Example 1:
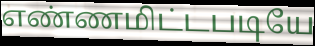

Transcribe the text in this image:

எண்ணமிட்டபடியே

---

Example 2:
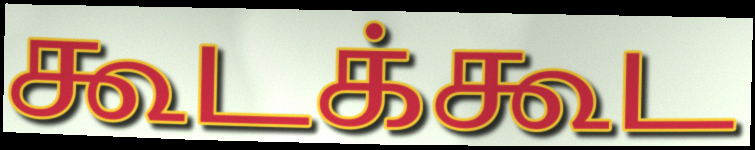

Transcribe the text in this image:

கூடக்கூட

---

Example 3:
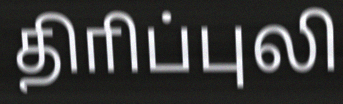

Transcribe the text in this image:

திரிப்புலி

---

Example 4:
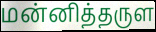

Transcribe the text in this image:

மன்னித்தருள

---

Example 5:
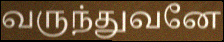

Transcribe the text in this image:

வருந்துவனே